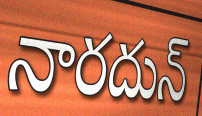
నారదున్